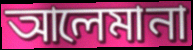
আলেমানা